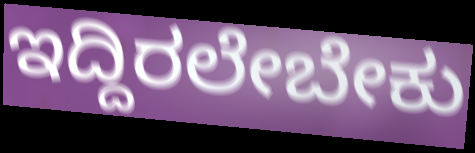
ಇದ್ದಿರಲೇಬೇಕು